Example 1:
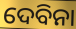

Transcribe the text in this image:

ଦେବିନା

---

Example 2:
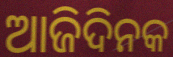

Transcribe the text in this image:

ଆଜିଦିନକ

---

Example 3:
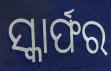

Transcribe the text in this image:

ସ୍କାର୍ଫର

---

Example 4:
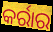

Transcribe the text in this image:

କର୍ରାର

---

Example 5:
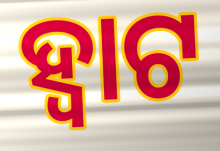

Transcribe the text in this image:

ହ୍ଵାଟ